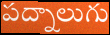
పద్నాలుగు